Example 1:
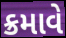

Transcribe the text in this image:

ક્રમાવે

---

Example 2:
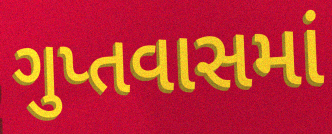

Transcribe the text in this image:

ગુપ્તવાસમાં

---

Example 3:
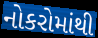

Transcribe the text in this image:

નોકરોમાંથી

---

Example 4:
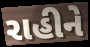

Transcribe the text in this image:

રાહીને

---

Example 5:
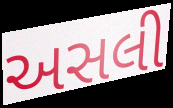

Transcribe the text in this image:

અસલી